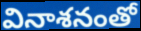
వినాశనంతో